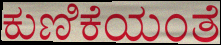
ಕುಣಿಕೆಯಂತೆ